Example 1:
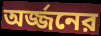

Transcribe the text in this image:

অর্জ্জনের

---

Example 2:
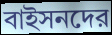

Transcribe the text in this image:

বাইসনদের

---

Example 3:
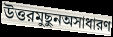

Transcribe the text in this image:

উত্তরমুছুনঅসাধারণ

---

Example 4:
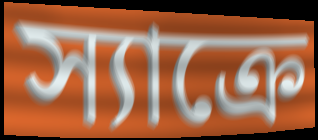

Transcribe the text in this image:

স্যাক্রে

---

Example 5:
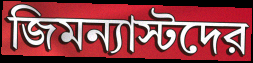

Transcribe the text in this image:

জিমন্যাস্টদের